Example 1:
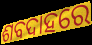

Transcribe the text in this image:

ଶବଦାହରେ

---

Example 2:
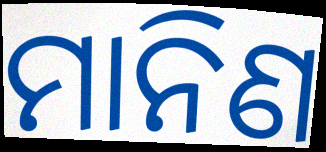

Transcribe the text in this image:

ମାନିଣ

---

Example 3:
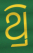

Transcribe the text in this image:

ଥ୍ରି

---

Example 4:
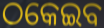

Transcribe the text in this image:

ଠକେଇବ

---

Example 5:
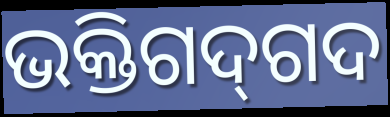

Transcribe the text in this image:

ଭକ୍ତିଗଦ୍‌ଗଦ